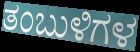
ತಂಬುಳಿಗಳ